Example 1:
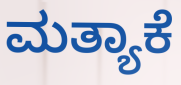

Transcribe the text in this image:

ಮತ್ಯಾಕೆ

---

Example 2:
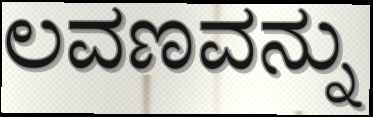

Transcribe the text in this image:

ಲವಣವನ್ನು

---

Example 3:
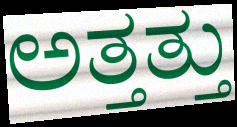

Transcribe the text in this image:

ಅತ್ತತ್ತು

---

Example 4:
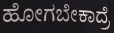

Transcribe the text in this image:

ಹೋಗಬೇಕಾದ್ರೆ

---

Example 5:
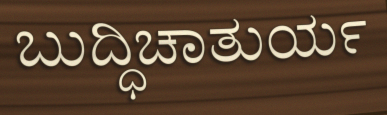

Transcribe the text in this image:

ಬುದ್ಧಿಚಾತುರ್ಯ